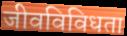
जीवविविधता